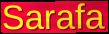
Sarafa